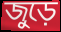
জুড়ে